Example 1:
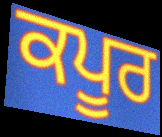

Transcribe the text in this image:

ਕਪੂਰ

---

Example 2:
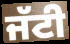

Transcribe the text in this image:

ਜੱਟੀ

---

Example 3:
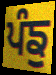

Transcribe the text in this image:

ਪੰਙੁ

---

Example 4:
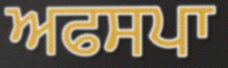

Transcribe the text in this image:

ਅਫਸਪਾ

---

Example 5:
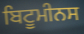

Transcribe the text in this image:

ਬਿਟੂਮੀਨਸ